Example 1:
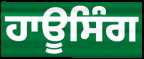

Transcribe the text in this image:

ਹਾਊਸਿੰਗ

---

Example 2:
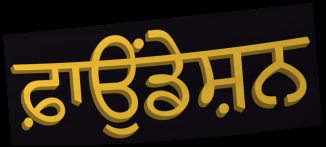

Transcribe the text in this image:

ਫ਼ਾਉਂਡੇਸ਼ਨ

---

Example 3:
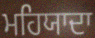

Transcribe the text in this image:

ਮਹਿਯਾਦਾ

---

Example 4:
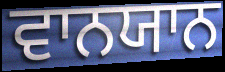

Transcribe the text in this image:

ਵਾਨਯਾਨ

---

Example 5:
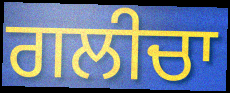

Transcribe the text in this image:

ਗਲੀਚਾ